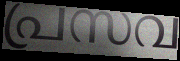
പ്രസവ